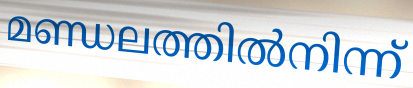
മണ്ഡലത്തിൽനിന്ന്